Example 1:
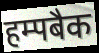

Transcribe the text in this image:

हम्पबैक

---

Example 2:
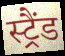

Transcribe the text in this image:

स्ट्रैंड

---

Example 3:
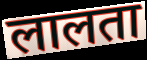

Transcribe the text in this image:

लालता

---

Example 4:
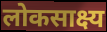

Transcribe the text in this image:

लोकसाक्ष्य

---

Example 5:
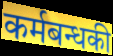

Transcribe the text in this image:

कर्मबन्धकी